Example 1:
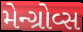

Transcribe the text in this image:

મેન્ગ્રોવ્સ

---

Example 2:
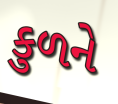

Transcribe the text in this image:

કુળને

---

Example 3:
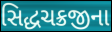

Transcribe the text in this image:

સિદ્ધચક્રજીના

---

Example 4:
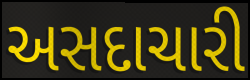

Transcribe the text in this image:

અસદાચારી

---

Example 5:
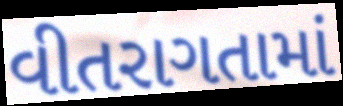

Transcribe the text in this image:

વીતરાગતામાં